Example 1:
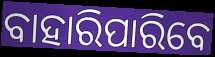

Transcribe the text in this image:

ବାହାରିପାରିବେ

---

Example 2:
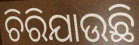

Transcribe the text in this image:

ଚିରିଯାଉଛି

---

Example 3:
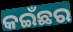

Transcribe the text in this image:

କଇଁଛର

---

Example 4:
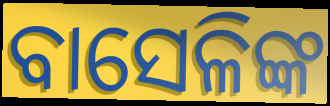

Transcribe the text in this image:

ବାସେଳିଙ୍କ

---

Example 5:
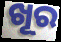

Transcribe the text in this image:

ଖୂର